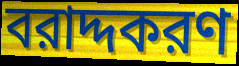
বরাদ্দকরণ